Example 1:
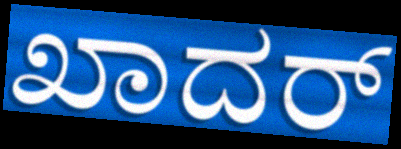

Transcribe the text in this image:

ಖಾದರ್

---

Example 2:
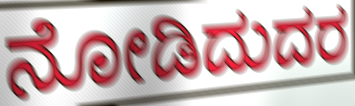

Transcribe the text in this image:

ನೋಡಿದುದರ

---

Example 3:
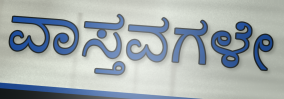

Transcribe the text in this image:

ವಾಸ್ತವಗಳೇ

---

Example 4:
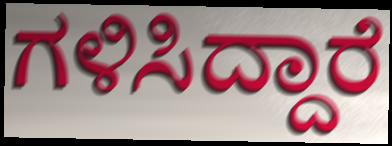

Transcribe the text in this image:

ಗಳಿಸಿದ್ದಾರೆ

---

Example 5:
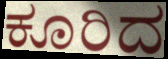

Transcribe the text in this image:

ಕೂರಿದ